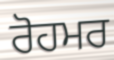
ਰੋਹਮਰ